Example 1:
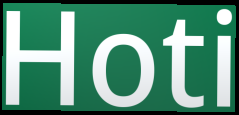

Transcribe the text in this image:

Hoti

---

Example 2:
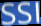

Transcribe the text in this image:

SSI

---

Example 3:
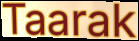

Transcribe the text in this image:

Taarak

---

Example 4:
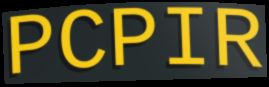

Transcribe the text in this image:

PCPIR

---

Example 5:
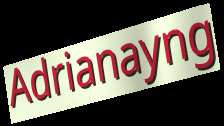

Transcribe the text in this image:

Adrianayng